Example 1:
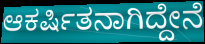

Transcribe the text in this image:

ಆಕರ್ಷಿತನಾಗಿದ್ದೇನೆ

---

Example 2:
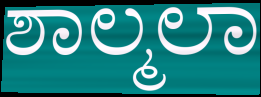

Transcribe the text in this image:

ಶಾಲ್ಮಲಾ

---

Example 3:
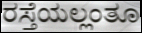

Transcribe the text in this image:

ರಸ್ತೆಯಲ್ಲಂತೂ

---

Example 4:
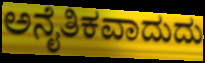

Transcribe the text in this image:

ಅನೈತಿಕವಾದುದು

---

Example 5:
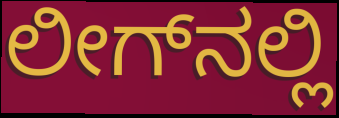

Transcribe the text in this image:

ಲೀಗ್‌ನಲ್ಲಿ